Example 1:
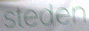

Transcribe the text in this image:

steden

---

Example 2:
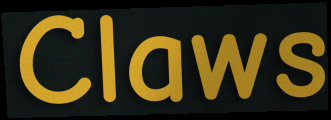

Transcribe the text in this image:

Claws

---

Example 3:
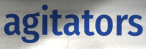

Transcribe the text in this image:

agitators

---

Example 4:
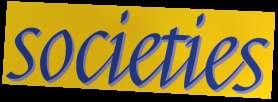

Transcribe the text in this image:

societies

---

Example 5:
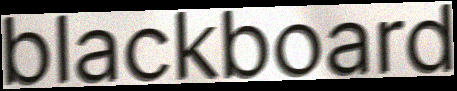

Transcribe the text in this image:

blackboard